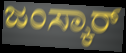
ಜಂಸ್ಕಾರ್